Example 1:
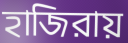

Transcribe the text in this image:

হাজিরায়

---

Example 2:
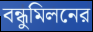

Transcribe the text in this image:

বন্ধুমিলনের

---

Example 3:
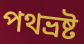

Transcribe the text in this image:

পথভ্রষ্ট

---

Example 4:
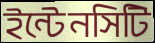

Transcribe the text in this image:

ইন্টেনসিটি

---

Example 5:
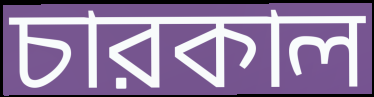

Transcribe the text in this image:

চারকাল